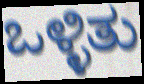
ಒಳ್ಳಿತು